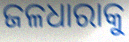
ଜଳଧାରାକୁ